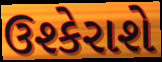
ઉશ્કેરાશે